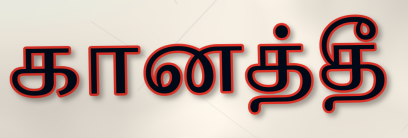
கானத்தீ